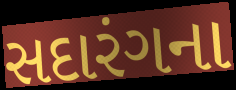
સદારંગના